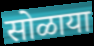
सोळाया